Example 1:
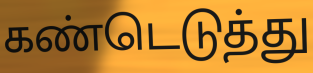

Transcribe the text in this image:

கண்டெடுத்து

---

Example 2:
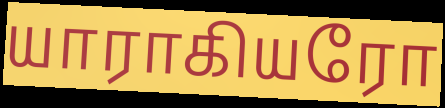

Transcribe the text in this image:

யாராகியரோ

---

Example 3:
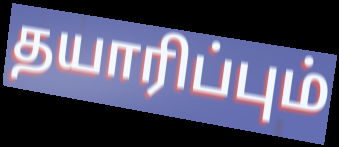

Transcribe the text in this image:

தயாரிப்பும்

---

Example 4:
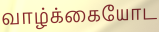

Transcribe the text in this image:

வாழ்க்கையோட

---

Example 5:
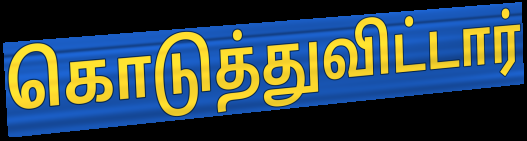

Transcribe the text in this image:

கொடுத்துவிட்டார்